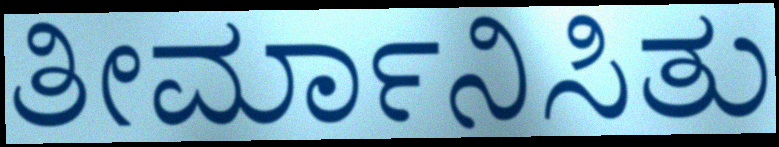
ತೀರ್ಮಾನಿಸಿತು